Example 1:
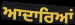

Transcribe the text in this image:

ਆਦਾਰਿਆਂ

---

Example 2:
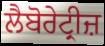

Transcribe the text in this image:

ਲੈਬੋਰੇਟ੍ਰੀਜ਼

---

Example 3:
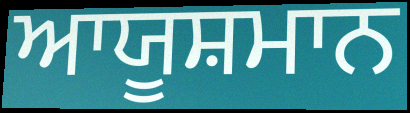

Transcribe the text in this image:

ਆਯੂਸ਼ਮਾਨ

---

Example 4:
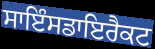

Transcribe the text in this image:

ਸਾਇੰਸਡਾਇਰੈਕਟ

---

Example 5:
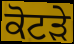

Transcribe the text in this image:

ਕੋਟੜੇ